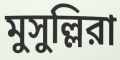
মুসুল্লিরা